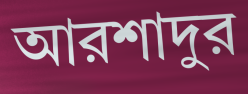
আরশাদুর